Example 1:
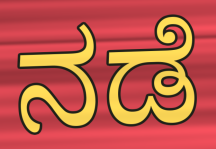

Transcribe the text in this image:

ನಡೆ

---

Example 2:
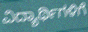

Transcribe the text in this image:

ವಿದ್ಯಾರ್ಥಿಗಳಿಗೆ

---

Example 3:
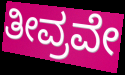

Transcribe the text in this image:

ತೀವ್ರವೇ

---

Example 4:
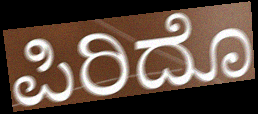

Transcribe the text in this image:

ಪಿರಿದೊ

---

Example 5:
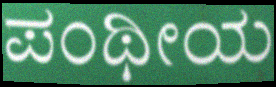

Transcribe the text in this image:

ಪಂಥೀಯ